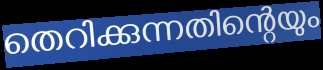
തെറിക്കുന്നതിന്റെയും